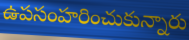
ఉపసంహరించుకున్నారు